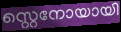
സ്റ്റെനോയായി